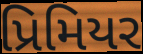
પ્રિમિયર